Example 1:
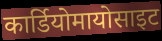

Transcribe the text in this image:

कार्डियोमायोसाइट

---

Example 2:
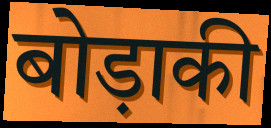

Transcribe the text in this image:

बोड़ाकी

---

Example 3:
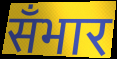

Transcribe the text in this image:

सँभार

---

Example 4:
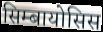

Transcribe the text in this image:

सिम्बायोसिस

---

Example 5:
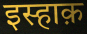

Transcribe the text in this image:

इस्हाक़